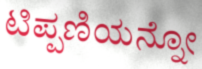
ಟಿಪ್ಪಣಿಯನ್ನೋ